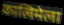
कालिमेला